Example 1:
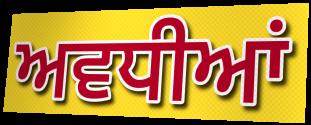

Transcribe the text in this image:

ਅਵਧੀਆਂ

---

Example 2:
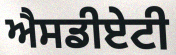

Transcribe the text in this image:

ਐਸਡੀਏਟੀ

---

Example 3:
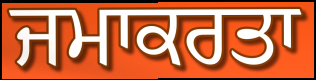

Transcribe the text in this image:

ਜਮਾਕਰਤਾ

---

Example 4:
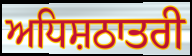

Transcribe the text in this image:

ਅਧਿਸ਼ਠਾਤਰੀ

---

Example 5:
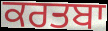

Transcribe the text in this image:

ਕਰਤਬਾ